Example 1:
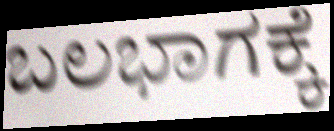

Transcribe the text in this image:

ಬಲಭಾಗಕ್ಕೆ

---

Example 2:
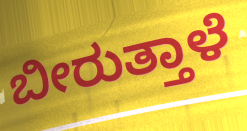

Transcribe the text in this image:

ಬೀರುತ್ತಾಳೆ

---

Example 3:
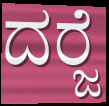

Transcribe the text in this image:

ದರ‍್ಜೆ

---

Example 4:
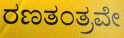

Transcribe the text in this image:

ರಣತಂತ್ರವೇ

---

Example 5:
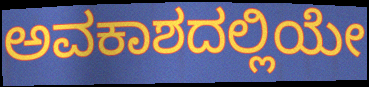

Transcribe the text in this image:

ಅವಕಾಶದಲ್ಲಿಯೇ